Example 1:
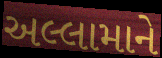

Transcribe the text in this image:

અલ્લામાને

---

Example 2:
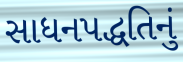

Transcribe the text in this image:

સાધનપદ્ધતિનું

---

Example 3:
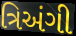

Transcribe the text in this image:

ત્રિઅંગી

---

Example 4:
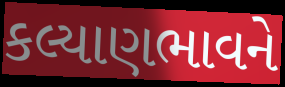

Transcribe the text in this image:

કલ્યાણભાવને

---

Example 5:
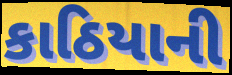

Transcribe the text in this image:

કાઠિયાની